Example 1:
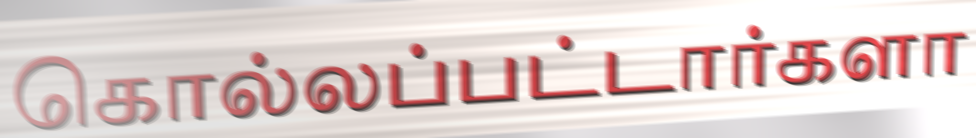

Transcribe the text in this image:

கொல்லப்பட்டார்களா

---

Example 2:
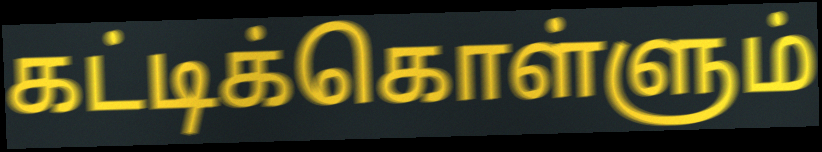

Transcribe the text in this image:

கட்டிக்கொள்ளும்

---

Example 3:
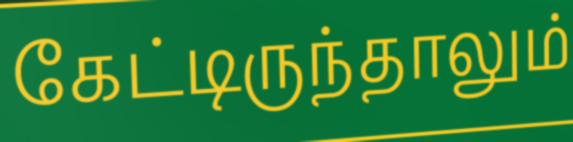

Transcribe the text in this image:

கேட்டிருந்தாலும்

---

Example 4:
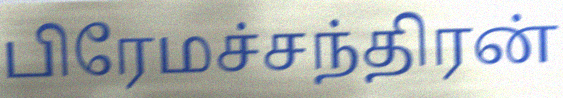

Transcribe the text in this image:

பிரேமச்சந்திரன்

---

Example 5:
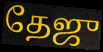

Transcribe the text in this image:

தேஜு